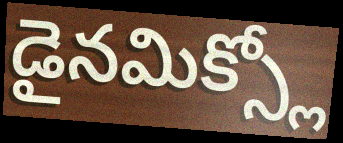
డైనమిక్స్లో